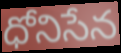
ధోనిసేన